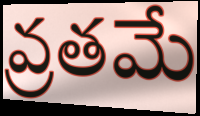
వ్రతమే